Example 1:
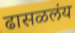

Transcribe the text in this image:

ढासळलंय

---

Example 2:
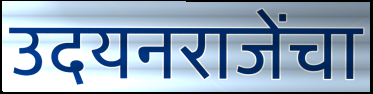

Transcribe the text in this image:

उदयनराजेंचा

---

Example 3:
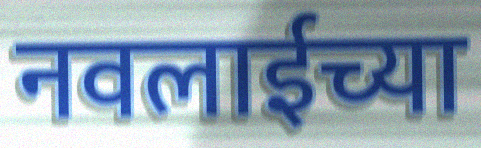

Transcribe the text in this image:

नवलाईच्या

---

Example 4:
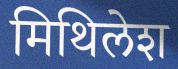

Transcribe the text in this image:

मिथिलेश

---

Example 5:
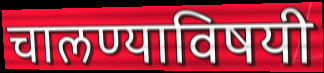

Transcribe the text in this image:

चालण्याविषयी